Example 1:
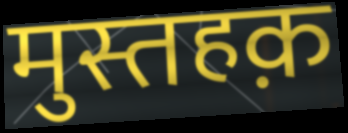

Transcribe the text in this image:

मुस्तहक़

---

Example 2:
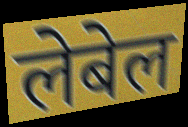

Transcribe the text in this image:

लेबेल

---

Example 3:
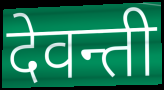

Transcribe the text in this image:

देवन्ती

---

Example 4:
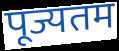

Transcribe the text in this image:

पूज्यतम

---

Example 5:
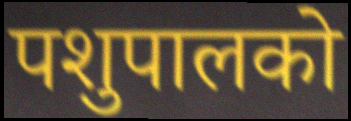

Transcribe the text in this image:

पशुपालको